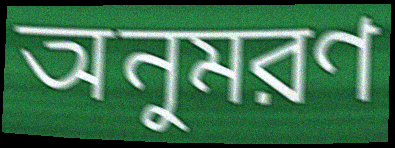
অনুমরণ